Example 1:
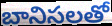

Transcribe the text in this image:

బానిసలతో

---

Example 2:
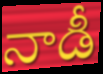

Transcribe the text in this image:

నాడీ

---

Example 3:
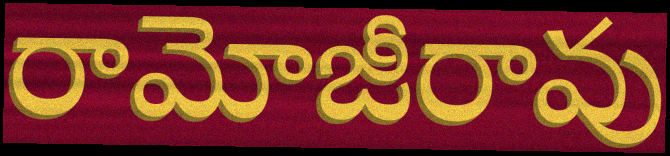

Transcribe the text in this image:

రామోజీరావు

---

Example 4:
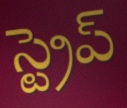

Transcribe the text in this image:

స్ట్రెప్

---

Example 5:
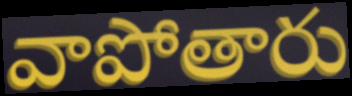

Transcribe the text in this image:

వాపోతారు